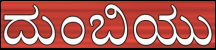
ದುಂಬಿಯು